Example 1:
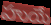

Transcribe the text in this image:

హుయే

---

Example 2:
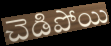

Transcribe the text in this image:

చెడిపోయి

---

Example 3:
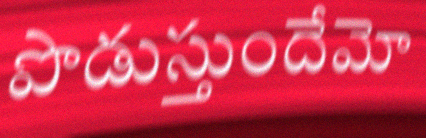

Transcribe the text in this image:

పొడుస్తుందేమో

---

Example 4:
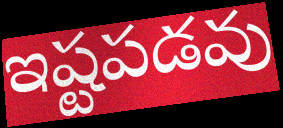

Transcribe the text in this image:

ఇష్టపడవు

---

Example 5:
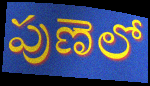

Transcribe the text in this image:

పుణెలో